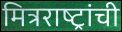
मित्रराष्ट्रांची